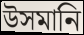
উসমানি